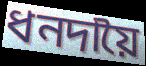
ধনদায়ৈ